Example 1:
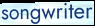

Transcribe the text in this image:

songwriter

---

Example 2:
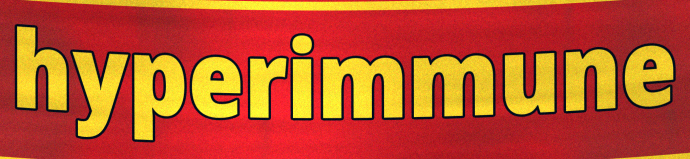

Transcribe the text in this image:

hyperimmune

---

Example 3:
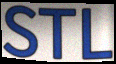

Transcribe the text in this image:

STL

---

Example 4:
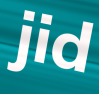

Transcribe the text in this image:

jid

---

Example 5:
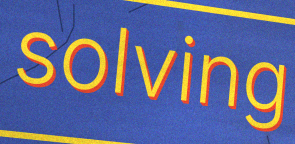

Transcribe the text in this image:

solving